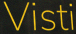
Visti